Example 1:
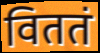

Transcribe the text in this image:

विततं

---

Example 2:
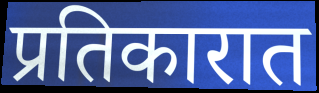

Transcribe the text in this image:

प्रतिकारात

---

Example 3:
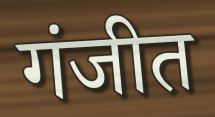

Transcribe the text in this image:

गंजीत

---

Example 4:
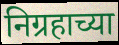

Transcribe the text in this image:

निग्रहाच्या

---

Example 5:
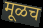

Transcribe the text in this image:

मूळच